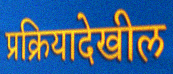
प्रक्रियादेखील